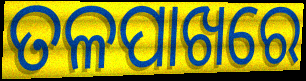
ତଳପାଖରେ